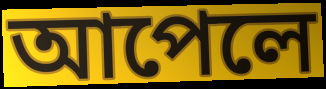
আপেলে